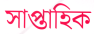
সাপ্তাহিক